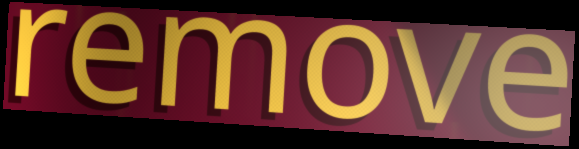
remove